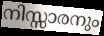
നിസ്സാരനും